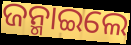
ଜନ୍ମାଇଲେ